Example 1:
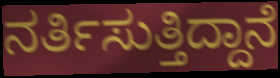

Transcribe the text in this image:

ನರ್ತಿಸುತ್ತಿದ್ದಾನೆ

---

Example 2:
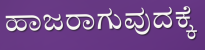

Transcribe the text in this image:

ಹಾಜರಾಗುವುದಕ್ಕೆ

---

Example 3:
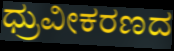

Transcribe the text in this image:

ಧ್ರುವೀಕರಣದ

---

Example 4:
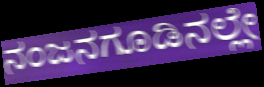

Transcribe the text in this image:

ನಂಜನಗೂಡಿನಲ್ಲೇ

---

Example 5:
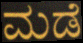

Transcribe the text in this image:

ಮಡೆ